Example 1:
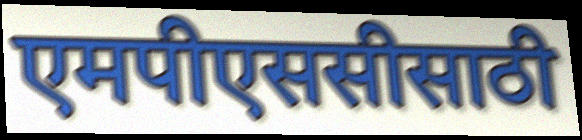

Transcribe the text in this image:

एमपीएससीसाठी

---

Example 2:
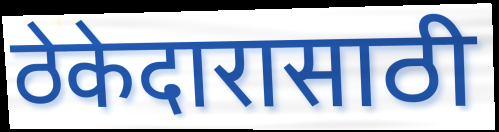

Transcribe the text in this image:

ठेकेदारासाठी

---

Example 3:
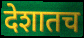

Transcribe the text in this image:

देशातच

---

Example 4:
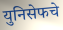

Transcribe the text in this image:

युनिसेफचे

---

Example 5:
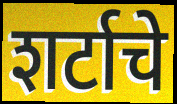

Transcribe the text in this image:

शर्टाचे